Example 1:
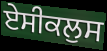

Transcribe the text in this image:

ਏਸੀਕਲੁਸ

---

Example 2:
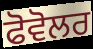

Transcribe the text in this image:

ਫੋਵੋਲਰ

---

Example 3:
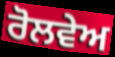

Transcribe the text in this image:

ਰੋਲਵੇਅ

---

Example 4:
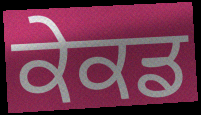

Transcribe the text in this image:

ਕੇਕਡ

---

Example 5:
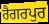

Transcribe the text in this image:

ਰੈਗਰਪੁਰ